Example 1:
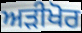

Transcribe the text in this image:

ਅੜੀਖੋਰ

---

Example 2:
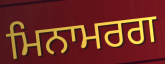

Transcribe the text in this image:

ਮਿਨਾਮਰਗ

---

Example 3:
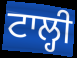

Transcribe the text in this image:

ਟਾਲ੍ਹੀ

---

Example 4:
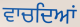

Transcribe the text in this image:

ਵਾਚਦਿਆਂ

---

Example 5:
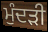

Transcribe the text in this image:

ਮੁੰਦੜੀ